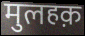
मुलहक़